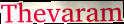
Thevaram